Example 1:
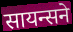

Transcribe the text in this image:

सायन्सने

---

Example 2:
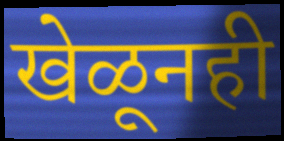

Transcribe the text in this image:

खेळूनही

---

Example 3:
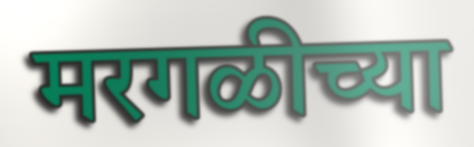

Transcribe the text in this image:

मरगळीच्या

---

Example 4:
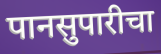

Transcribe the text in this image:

पानसुपारीचा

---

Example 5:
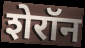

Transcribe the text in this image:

शेरॉन